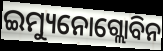
ଇମ୍ୟୁନୋଗ୍ଲୋବିନ